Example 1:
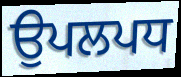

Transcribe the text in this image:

ਉਪਲਪਧ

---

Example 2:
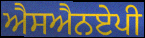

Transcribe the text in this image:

ਐਸਐਨਏਪੀ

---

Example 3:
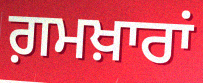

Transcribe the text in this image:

ਗ਼ਮਖ਼ਾਰਾਂ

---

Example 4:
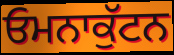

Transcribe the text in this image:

ਓਮਨਾਕੁੱਟਨ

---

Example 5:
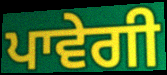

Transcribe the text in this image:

ਪਾਵੇਗੀ